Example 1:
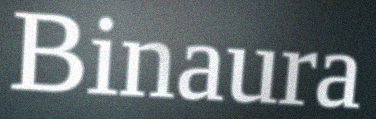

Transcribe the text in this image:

Binaura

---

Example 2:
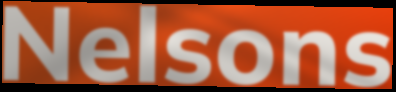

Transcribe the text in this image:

Nelsons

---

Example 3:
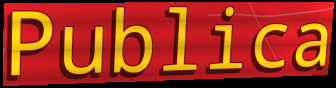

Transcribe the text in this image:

Publica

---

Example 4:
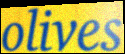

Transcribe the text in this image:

olives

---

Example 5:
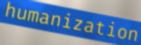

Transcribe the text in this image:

humanization